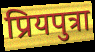
प्रियपुत्रा